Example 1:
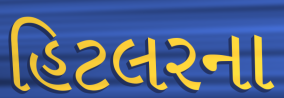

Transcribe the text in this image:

હિટલરના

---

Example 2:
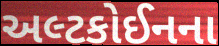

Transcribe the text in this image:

અલ્ટકોઈનના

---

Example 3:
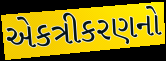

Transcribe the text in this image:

એકત્રીકરણનો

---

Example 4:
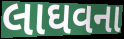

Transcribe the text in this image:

લાઘવના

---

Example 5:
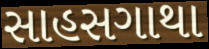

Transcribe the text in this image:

સાહસગાથા